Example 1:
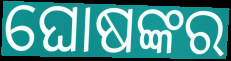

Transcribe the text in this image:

ଘୋଷଙ୍କର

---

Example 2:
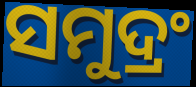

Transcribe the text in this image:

ସମୁଦ୍ରଂ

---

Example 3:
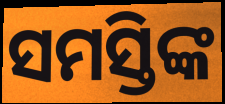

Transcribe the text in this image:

ସମସ୍ତିଙ୍କ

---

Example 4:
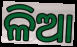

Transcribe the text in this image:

ଳିଆ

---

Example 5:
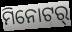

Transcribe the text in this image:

ମିନୋଟର୍